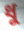
ধু